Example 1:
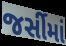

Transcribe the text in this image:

જર્સીમાં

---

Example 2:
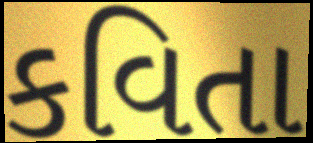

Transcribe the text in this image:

કવિતા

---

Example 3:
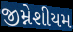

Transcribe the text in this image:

જીમ્નેશીયમ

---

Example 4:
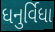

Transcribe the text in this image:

ધનુર્વિધા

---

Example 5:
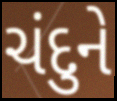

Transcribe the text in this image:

ચંદુને